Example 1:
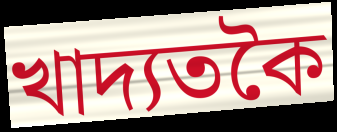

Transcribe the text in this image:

খাদ্যতকৈ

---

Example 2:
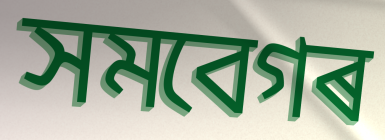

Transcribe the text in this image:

সমবেগৰ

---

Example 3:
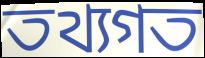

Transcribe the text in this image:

তথ্যগত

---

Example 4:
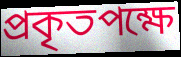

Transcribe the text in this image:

প্ৰকৃতপক্ষে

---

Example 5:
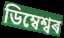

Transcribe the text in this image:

ডিম্বেশ্বৰ